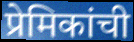
प्रेमिकांची